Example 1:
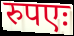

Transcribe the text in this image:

रुपएः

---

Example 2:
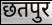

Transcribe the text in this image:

छतपुर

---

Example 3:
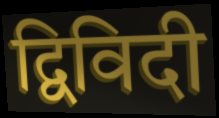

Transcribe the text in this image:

द्विविदी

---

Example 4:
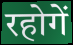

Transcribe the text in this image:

रहोगें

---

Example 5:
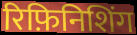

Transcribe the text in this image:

रिफ़िनिशिंग